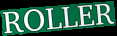
ROLLER